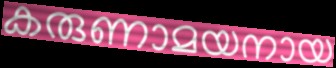
കരുണാമയനായ